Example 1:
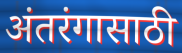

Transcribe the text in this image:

अंतरंगासाठी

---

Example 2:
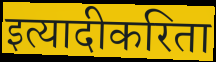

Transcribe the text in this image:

इत्यादीकरिता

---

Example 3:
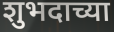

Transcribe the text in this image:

शुभदाच्या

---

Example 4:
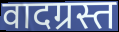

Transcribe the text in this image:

वादग्रस्त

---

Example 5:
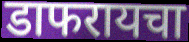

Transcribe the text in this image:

डाफरायचा